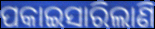
ପକାଇସାରିଲାଣି